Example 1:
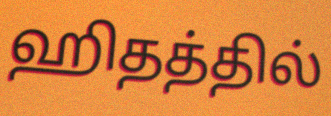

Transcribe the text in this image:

ஹிதத்தில்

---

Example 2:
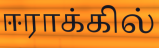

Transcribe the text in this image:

ஈராக்கில்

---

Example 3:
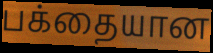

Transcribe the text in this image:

பக்தையான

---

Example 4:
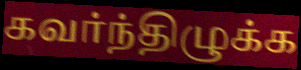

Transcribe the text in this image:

கவர்ந்திழுக்க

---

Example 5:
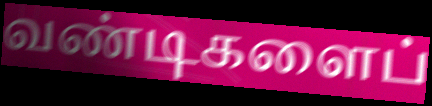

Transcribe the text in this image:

வண்டிகளைப்